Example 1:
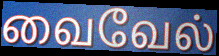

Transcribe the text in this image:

வைவேல்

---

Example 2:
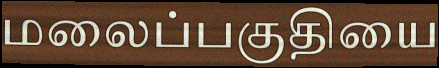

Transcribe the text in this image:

மலைப்பகுதியை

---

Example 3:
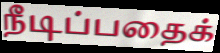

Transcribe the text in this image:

நீடிப்பதைக்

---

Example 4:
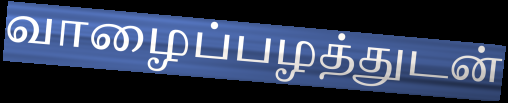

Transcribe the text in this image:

வாழைப்பழத்துடன்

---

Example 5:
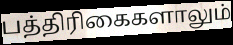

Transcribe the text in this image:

பத்திரிகைகளாலும்